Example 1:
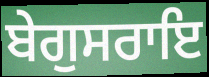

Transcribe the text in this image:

ਬੇਗੁਸਰਾਇ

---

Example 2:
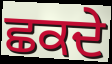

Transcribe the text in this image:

ਛਕਦੇ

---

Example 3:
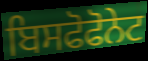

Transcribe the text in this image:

ਬਿਸਫੋਫੋਨੇਟ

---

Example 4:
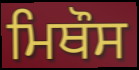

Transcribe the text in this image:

ਮਿਥੌਸ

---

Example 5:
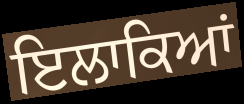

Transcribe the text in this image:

ਇਲਾਕਿਆਂ